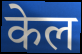
केल